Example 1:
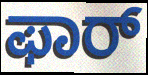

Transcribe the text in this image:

ಫಾರ್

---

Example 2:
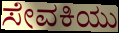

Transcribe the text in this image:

ಸೇವಕಿಯು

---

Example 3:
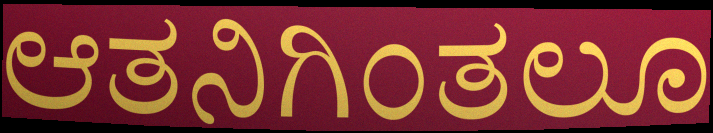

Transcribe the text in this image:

ಆತನಿಗಿಂತಲೂ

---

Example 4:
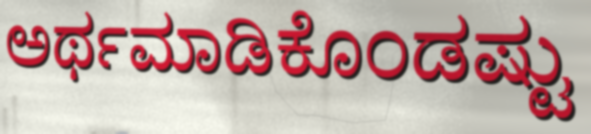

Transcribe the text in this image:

ಅರ್ಥಮಾಡಿಕೊಂಡಷ್ಟು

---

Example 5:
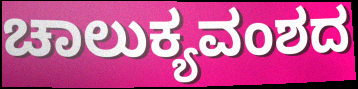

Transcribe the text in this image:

ಚಾಲುಕ್ಯವಂಶದ